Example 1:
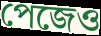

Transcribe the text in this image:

পেজেও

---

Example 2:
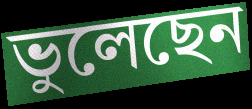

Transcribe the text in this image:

ভুলেছেন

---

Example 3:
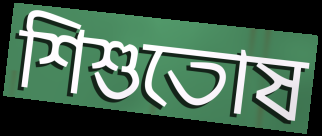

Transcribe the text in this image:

শিশুতোষ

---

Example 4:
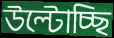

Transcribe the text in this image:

উল্টোচ্ছি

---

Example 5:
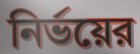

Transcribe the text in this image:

নির্ভয়ের